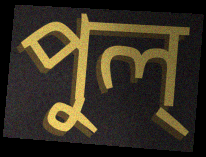
পুল্